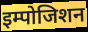
इम्पोजिशन